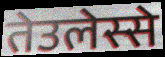
तेउलेस्से